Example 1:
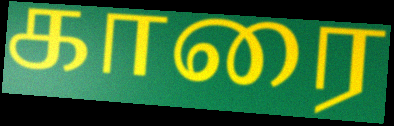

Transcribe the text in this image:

காரை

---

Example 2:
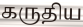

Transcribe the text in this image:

கருதிய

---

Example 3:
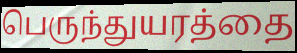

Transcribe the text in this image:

பெருந்துயரத்தை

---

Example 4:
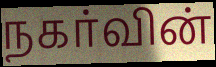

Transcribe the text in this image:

நகர்வின்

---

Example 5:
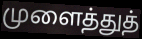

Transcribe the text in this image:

முளைத்துத்